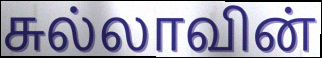
சுல்லாவின்